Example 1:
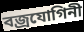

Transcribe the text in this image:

বজ্রযোগিনী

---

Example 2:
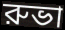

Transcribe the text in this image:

রুভা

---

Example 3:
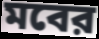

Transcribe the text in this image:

মবের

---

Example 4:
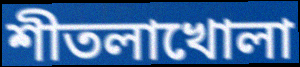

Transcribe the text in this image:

শীতলাখোলা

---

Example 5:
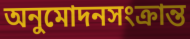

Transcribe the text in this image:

অনুমোদনসংক্রান্ত